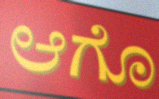
ಆಗೊ